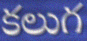
కలుగ